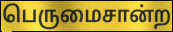
பெருமைசான்ற